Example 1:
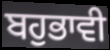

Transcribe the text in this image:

ਬਹੁਭਾਵੀ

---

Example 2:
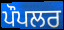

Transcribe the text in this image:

ਪੌਪਲਰ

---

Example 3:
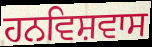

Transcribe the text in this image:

ਹਨਵਿਸ਼ਵਾਸ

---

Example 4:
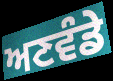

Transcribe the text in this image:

ਅਣਵੰਡੇ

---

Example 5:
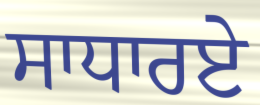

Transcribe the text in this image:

ਸਾਧਾਰਏ